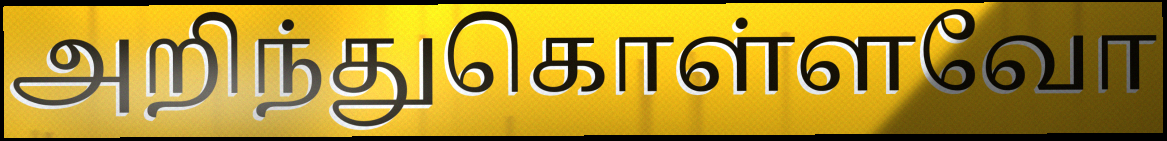
அறிந்துகொள்ளவோ